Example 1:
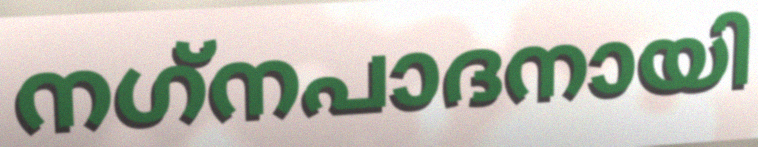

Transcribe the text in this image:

നഗ്‌നപാദനായി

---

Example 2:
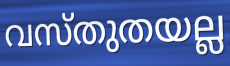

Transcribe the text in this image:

വസ്തുതയല്ല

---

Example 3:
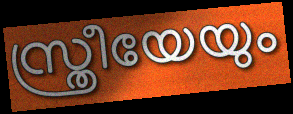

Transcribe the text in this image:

സ്ത്രീയേയും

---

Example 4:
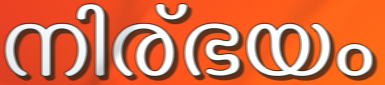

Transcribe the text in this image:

നിര്ഭയം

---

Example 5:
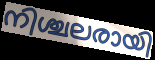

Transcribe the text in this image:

നിശ്ചലരായി